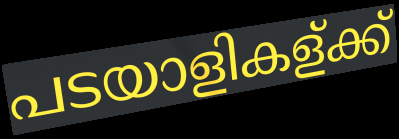
പടയാളികള്ക്ക്